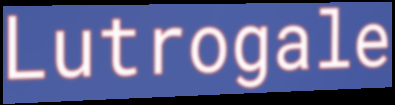
Lutrogale